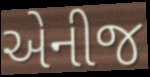
એનીજ